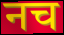
नच